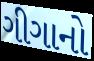
ગીગાનો